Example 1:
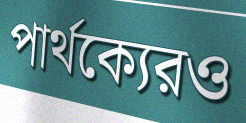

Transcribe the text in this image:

পার্থক্যেরও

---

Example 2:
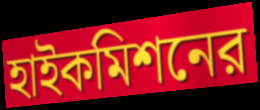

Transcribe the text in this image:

হাইকমিশনের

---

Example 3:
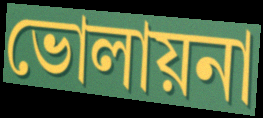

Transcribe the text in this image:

ভোলায়না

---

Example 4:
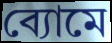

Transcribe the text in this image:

ব্যোমে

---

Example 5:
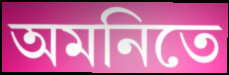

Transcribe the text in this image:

অমনিতে